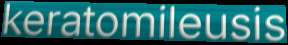
keratomileusis